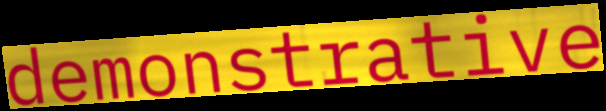
demonstrative